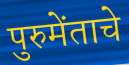
पुरुमेंताचे